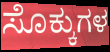
ಸೊಕ್ಕುಗಳ